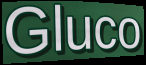
Gluco